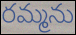
రమ్మను